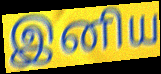
இனிய